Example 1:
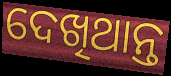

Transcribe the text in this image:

ଦେଖିଥାନ୍ତ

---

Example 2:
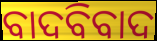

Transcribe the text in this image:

ବାଦବିବାଦ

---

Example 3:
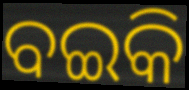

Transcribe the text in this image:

ବଇକି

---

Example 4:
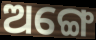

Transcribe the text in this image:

ଅଙ୍ଗେ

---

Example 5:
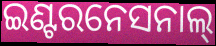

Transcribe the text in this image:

ଇଣ୍ଟରନେସନାଲ୍